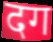
दग